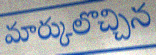
మార్కులొచ్చిన